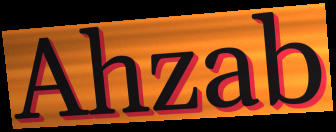
Ahzab